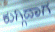
ಕುಗ್ಗಿದಾಗ